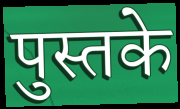
पुस्तके